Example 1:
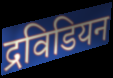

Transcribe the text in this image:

द्रविडियन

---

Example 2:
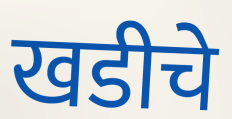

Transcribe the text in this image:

खडीचे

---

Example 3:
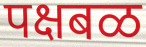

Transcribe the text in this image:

पक्षबळ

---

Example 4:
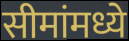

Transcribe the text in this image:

सीमांमध्ये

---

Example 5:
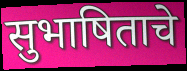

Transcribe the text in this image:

सुभाषिताचे